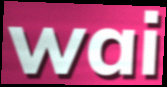
wai